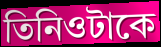
তিনিওটাকে